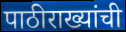
पाठीराख्यांची